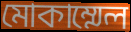
মোকাম্মেল